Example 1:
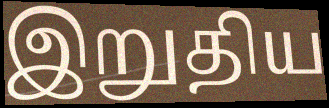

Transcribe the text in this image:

இறுதிய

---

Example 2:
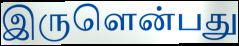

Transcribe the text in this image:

இருளென்பது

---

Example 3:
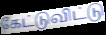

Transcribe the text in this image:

கேட்டுவிட்டு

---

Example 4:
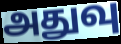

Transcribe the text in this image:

அதுவு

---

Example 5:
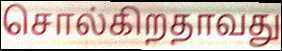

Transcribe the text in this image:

சொல்கிறதாவது